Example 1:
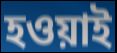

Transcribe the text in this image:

হওয়াই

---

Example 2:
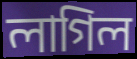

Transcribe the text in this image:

লাগিল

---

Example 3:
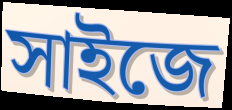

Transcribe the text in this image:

সাইজে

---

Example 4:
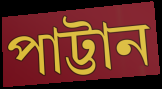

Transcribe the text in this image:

পাট্টান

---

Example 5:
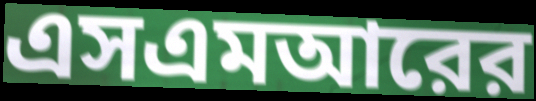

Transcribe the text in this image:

এসএমআরের